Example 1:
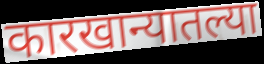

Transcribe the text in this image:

कारखान्यातल्या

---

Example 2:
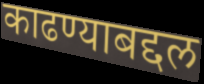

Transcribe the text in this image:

काढण्याबद्दल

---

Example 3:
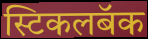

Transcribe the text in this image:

स्टिकलबॅक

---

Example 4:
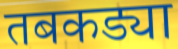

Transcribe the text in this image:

तबकड्या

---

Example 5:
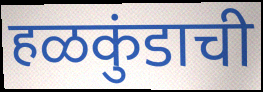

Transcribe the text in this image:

हळकुंडाची